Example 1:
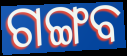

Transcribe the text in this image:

ଗଙ୍ଗବ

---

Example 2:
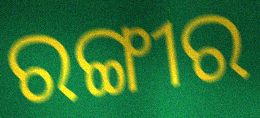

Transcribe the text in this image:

ରଙ୍ଗୀର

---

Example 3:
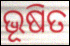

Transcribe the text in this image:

ଭୂଷିତ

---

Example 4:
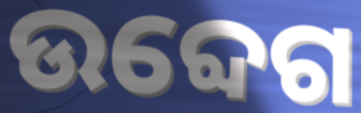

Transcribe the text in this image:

ଉବ୍ଦେଗ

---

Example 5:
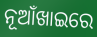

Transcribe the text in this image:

ନୂଆଁଖାଇରେ